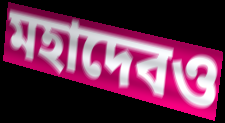
মহাদেবও